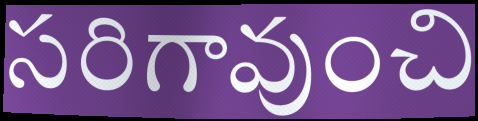
సరిగావుంచి